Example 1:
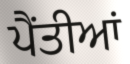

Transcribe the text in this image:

ਪੈਂਤੀਆਂ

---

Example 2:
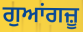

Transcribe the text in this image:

ਗੁਆਂਗਜ਼ੂ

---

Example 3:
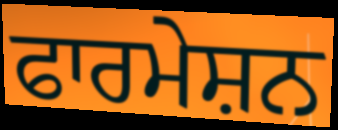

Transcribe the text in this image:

ਫਾਰਮੇਸ਼ਨ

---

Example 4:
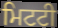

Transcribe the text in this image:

ਮਿਟਟੀ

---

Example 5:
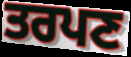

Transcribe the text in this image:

ਤਰਪਣ